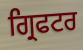
ਗ੍ਰਿਫਟਰ